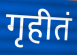
गृहीतं